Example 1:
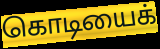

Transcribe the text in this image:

கொடியைக்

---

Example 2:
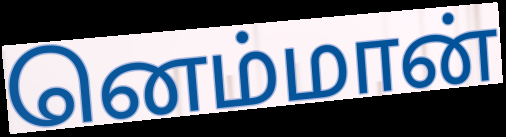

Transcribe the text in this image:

னெம்மான்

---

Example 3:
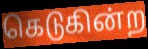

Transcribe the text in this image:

கெடுகின்ற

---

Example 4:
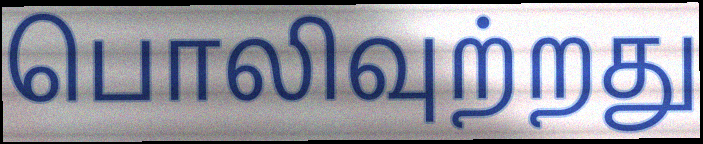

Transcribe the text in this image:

பொலிவுற்றது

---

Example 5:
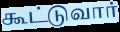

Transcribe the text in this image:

கூட்டுவார்